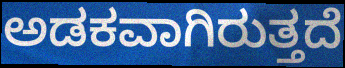
ಅಡಕವಾಗಿರುತ್ತದೆ